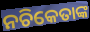
ନଚିକେତାଙ୍କ